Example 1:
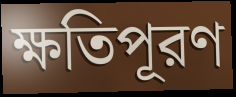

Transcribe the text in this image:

ক্ষতিপূরণ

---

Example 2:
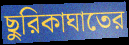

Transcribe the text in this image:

ছুরিকাঘাতের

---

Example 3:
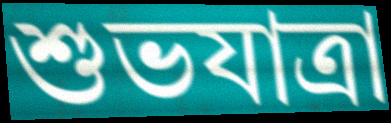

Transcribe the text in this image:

শুভযাত্রা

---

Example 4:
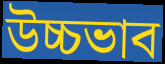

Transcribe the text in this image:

উচ্চভাব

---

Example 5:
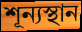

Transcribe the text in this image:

শূন্যস্থান